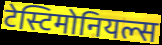
टेस्टिमोनियल्स